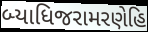
બ્યાધિજરામરણેહિ